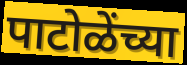
पाटोळेंच्या